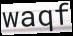
waqf